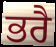
ਭਰੈ